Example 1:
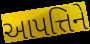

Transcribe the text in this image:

આપત્તિને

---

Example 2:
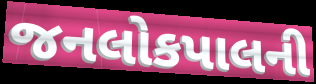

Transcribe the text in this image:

જનલોકપાલની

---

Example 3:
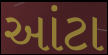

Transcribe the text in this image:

આંટા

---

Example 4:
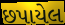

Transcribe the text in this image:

છપાયેલ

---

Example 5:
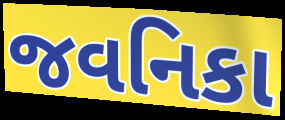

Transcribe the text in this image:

જવનિકા